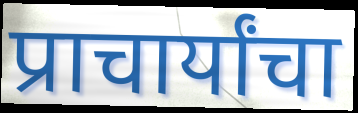
प्राचार्यांचा